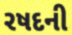
રષદની